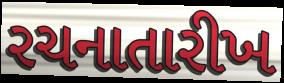
રચનાતારીખ